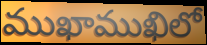
ముఖాముఖిలో